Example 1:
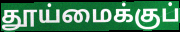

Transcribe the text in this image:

தூய்மைக்குப்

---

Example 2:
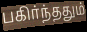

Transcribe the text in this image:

பகிர்ந்ததும்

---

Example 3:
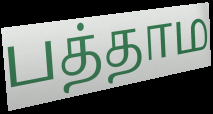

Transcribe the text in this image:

பத்தாம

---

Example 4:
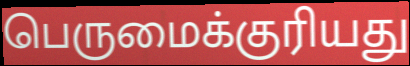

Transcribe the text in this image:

பெருமைக்குரியது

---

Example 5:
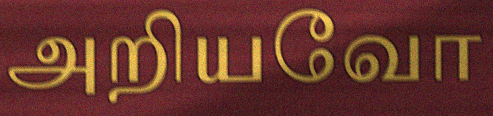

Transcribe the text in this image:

அறியவோ